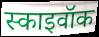
स्काइवॉक